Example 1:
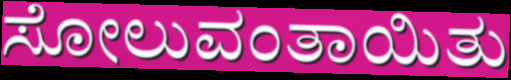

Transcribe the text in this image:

ಸೋಲುವಂತಾಯಿತು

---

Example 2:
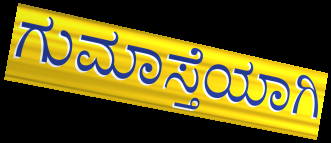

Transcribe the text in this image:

ಗುಮಾಸ್ತೆಯಾಗಿ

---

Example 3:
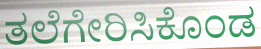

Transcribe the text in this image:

ತಲೆಗೇರಿಸಿಕೊಂಡ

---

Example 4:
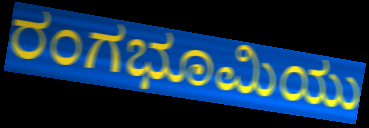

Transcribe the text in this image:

ರಂಗಭೂಮಿಯು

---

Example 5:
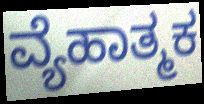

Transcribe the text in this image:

ವ್ಯೆಹಾತ್ಮಕ